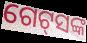
ଗେଟ୍‌ସଙ୍କ